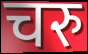
चरु